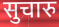
सुचारु